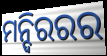
ମନ୍ଦିରରର